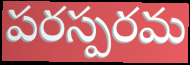
పరస్పరమ